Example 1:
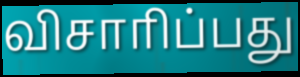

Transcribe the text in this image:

விசாரிப்பது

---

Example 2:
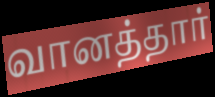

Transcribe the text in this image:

வானத்தார்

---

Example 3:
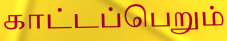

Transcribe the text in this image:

காட்டப்பெறும்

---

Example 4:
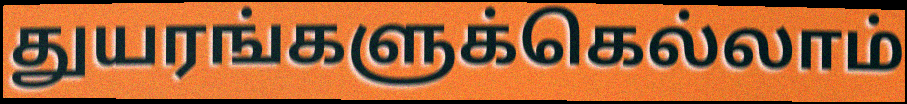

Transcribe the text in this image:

துயரங்களுக்கெல்லாம்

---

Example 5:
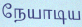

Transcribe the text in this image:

நேயாடிய